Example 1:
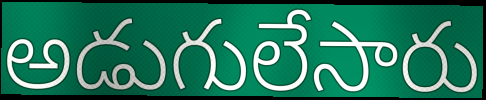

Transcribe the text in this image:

అడుగులేసారు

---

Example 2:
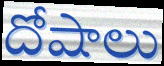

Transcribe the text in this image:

దోషాలు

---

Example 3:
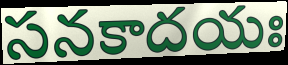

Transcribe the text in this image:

సనకాదయః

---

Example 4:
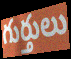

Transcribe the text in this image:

గుర్తులు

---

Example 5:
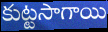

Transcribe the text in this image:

కుట్టసాగాయి